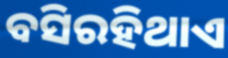
ବସିରହିଥାଏ